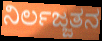
ನಿರ್ಲಜ್ಜತನ